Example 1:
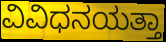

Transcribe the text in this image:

ವಿವಿಧನಯತ್ತಾ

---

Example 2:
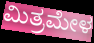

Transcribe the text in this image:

ಮಿತ್ರಮೇಳ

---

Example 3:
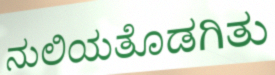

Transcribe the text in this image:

ನುಲಿಯತೊಡಗಿತು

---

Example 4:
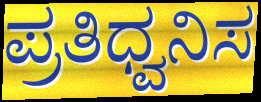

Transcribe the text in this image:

ಪ್ರತಿಧ್ವನಿಸ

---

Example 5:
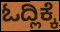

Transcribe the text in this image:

ಓದ್ಲಿಕ್ಕೆ